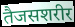
तैजसशरीर